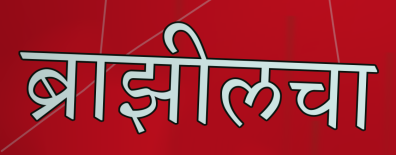
ब्राझीलचा